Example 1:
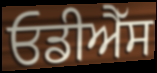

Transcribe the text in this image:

ਓਡੀਐੱਸ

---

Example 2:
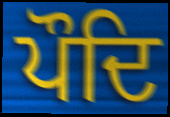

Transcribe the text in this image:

ਪੌਦਿ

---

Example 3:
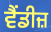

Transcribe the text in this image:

ਵੈਂਡੀਜ਼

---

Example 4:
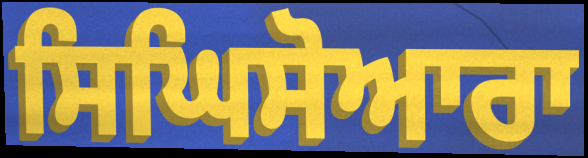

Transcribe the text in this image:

ਸਿਘਿਸੋਆਰਾ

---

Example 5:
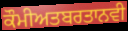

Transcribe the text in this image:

ਕੌਮੀਅਤਬਰਤਾਨਵੀ